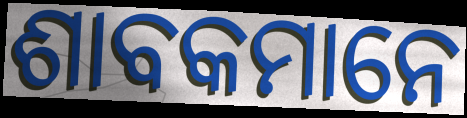
ଶାବକମାନେ